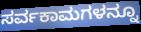
ಸರ್ವಕಾಮಗಳನ್ನೂ